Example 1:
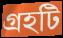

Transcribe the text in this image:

গ্রহটি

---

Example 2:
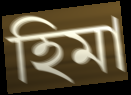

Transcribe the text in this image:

হিমা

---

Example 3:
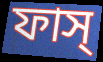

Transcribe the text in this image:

ফাস্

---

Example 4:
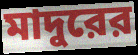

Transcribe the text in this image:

মাদুরের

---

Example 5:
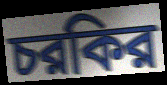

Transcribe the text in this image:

চরকির